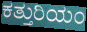
ಕತ್ತುರಿಯಂ